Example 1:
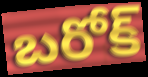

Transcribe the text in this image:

బరోక్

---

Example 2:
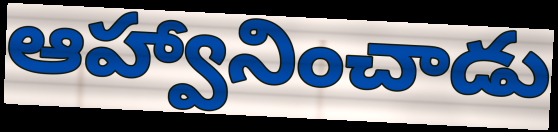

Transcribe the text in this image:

ఆహ్వానించాడు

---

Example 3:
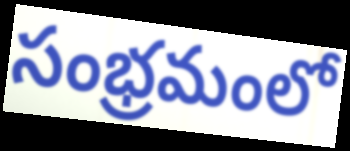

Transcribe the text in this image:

సంభ్రమంలో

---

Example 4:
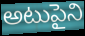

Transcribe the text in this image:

అటుపైని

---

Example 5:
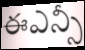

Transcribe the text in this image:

ఈఎన్సీ